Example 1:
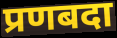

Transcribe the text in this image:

प्रणबदा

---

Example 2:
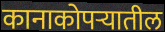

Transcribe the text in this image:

कानाकोपऱ्यातील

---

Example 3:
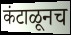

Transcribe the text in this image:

कंटाळूनच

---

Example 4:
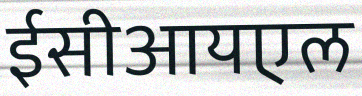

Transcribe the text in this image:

ईसीआयएल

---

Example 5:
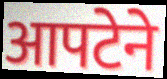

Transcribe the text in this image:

आपटेने